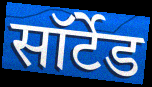
सॉर्टेड